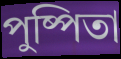
পুষ্পিতা